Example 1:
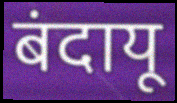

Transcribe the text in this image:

बंदायू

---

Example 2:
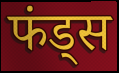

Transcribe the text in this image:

फंड्स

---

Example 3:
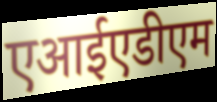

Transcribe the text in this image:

एआईएडीएम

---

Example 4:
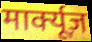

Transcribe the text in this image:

मार्क्यूज़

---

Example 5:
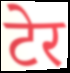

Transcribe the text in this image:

टेर